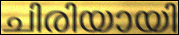
ചിരിയായി